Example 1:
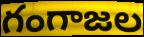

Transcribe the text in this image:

గంగాజల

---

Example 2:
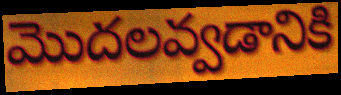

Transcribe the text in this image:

మొదలవ్వడానికి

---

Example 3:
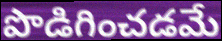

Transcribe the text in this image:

పొడిగించడమే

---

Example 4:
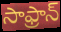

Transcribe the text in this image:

సాఫ్రాన్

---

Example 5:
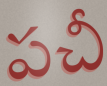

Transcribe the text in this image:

పచీ